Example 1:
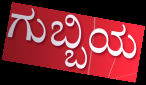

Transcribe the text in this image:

ಗುಬ್ಬಿಯ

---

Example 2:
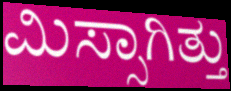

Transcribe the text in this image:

ಮಿಸ್ಸಾಗಿತ್ತು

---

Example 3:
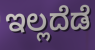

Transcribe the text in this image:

ಇಲ್ಲದೆಡೆ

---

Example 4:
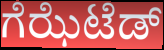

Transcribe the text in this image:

ಗೆಝೆಟೆಡ್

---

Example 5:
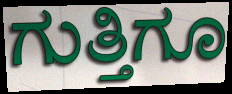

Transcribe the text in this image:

ಗುತ್ತಿಗೂ